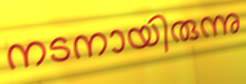
നടനായിരുന്നു